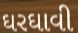
ઘરઘાવી